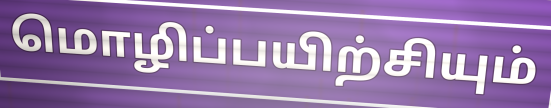
மொழிப்பயிற்சியும்